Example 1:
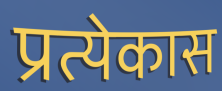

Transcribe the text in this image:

प्रत्येकास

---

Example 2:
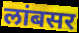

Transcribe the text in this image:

लांबसर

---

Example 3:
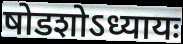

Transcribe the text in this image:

षोडशोऽध्यायः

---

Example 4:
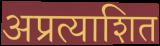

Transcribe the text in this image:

अप्रत्याशित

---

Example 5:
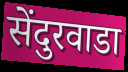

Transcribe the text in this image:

सेंदुरवाडा